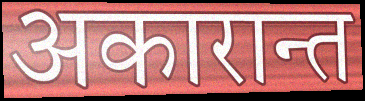
अकारान्त